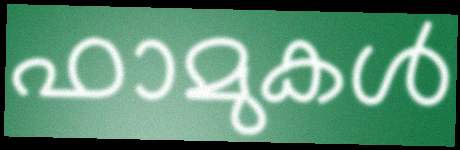
ഫാമുകൾ